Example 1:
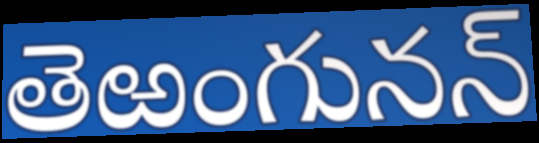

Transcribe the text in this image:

తెఱంగునన్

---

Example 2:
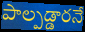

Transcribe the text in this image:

పాల్పడ్డారనే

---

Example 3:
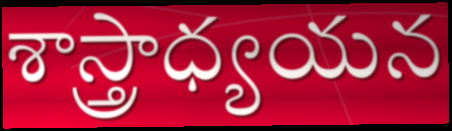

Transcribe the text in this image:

శాస్త్రాధ్యయన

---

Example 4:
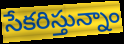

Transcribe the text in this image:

సేకరిస్తున్నాం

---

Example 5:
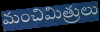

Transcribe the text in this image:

మంచిమిత్రులు